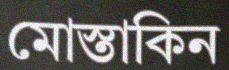
মোস্তাকিন